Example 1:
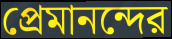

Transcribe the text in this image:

প্রেমানন্দের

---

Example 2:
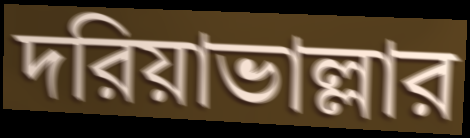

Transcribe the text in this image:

দরিয়াভাল্লার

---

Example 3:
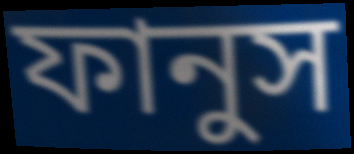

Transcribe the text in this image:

ফানুস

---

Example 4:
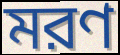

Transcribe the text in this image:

মরণ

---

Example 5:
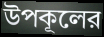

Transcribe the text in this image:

উপকূলের